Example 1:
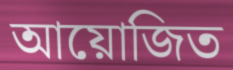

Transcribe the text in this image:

আয়োজিত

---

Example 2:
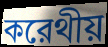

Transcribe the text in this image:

করেথীয়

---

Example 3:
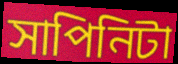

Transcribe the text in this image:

সাপিনিটা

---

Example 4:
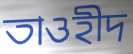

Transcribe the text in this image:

তাওহীদ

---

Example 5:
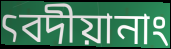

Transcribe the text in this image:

ৎবদীয়ানাং